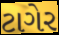
ટાગેર